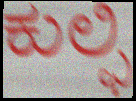
ಕುಲ್ಫಿ